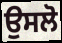
ਉਸਲੋ